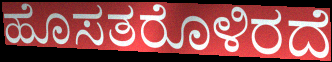
ಹೊಸತರೊಳಿರದೆ